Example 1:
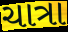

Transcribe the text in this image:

ચાત્રા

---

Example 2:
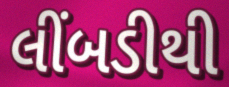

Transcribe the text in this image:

લીંબડીથી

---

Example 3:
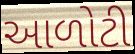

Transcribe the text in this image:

આળોટી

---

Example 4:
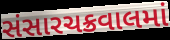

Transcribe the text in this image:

સંસારચક્રવાલમાં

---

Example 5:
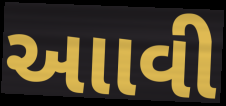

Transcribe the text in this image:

આાવી